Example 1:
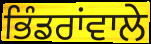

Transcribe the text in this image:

ਭਿੰਡਰਾਂਵਾਲੇ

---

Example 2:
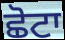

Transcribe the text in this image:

ਛੋਟਾ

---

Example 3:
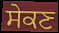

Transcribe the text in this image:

ਸੇਕਣ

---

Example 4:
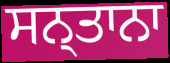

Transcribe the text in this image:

ਸਨ੍ਤਾਨਾ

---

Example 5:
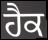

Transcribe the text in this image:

ਹੈਕ